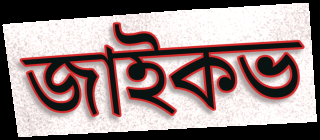
জাইকভ